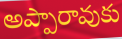
అప్పారావుకు